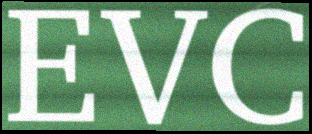
EVC